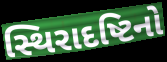
સ્થિરાદષ્ટિનો